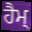
ਹੈਮ੍